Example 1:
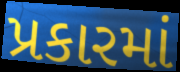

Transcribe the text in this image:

પ્રકારમાં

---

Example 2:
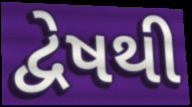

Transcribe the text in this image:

દ્વેષથી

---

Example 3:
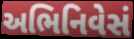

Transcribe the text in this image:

અભિનિવેસં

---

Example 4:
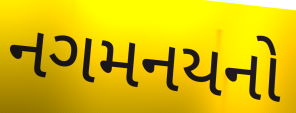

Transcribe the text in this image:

નગમનયનો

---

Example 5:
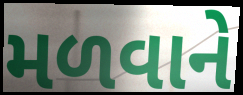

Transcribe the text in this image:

મળવાને